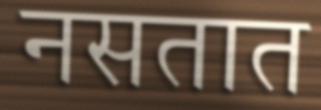
नसतात